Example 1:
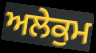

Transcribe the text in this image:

ਅਲੇਕੁਮ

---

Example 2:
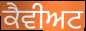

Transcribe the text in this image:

ਕੈਵੀਅਟ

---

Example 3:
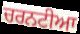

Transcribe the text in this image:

ਚਰਨਟੀਆ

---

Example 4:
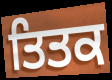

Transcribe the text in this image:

ਤਿਤਕ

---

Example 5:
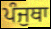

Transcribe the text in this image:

ਪੰਜੁਥਾ